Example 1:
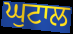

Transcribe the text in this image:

ਘੁਟਾਲ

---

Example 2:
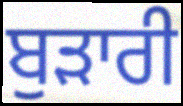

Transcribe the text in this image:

ਬੁੜਾਰੀ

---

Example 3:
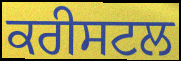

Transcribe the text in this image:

ਕਰੀਸਟਲ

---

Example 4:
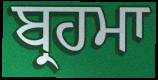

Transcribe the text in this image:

ਬ੍ਰਹਮਾ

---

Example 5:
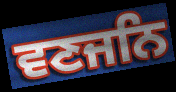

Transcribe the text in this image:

ਵਣਜਨਿ